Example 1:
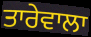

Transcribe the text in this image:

ਤਾਰੇਵਾਲਾ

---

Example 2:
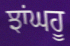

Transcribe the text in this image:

ਝਾਂਘਹੂ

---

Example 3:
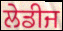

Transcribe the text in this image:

ਲੇਡੀਜ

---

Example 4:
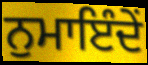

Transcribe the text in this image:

ਨੁਮਾਇੰਦੇਂ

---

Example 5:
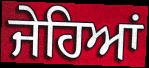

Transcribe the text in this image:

ਜੇਹਿਆਂ